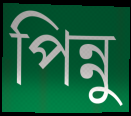
পিন্নু